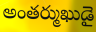
అంతర్ముఖుడై